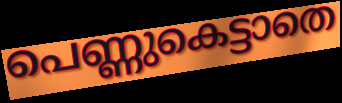
പെണ്ണുകെട്ടാതെ